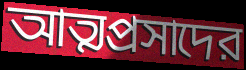
আত্মপ্রসাদের